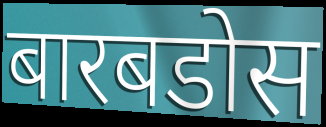
बारबडोस